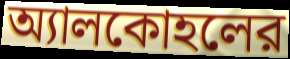
অ্যালকোহলের